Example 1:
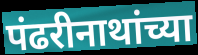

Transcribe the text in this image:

पंढरीनाथांच्या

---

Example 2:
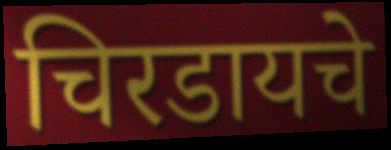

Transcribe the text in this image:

चिरडायचे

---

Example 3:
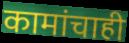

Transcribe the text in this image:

कामांचाही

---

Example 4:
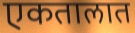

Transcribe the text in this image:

एकतालात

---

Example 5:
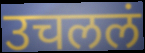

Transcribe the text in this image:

उचललं